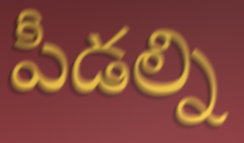
పీడల్ని